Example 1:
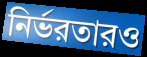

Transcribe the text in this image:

নির্ভরতারও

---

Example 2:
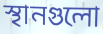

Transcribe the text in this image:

স্থানগুলো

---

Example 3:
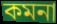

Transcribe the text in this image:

কমনা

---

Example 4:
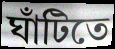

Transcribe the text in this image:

ঘাঁটিতে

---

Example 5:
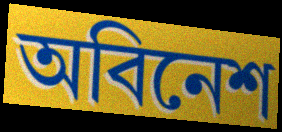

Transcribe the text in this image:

অবিনেশ